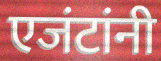
एजंटांनी